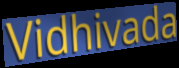
Vidhivada